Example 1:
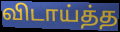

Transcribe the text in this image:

விடாய்த்த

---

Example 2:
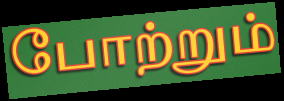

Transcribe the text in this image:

போற்றும்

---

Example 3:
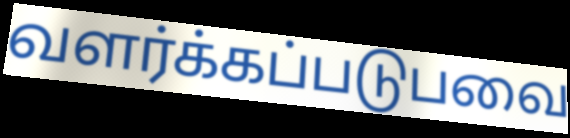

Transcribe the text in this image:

வளர்க்கப்படுபவை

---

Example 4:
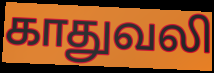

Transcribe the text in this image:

காதுவலி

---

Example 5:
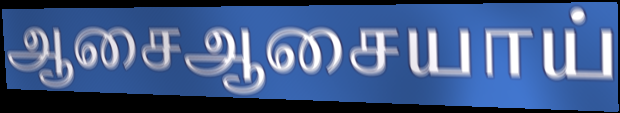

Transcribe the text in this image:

ஆசைஆசையாய்